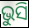
ଭୁସି